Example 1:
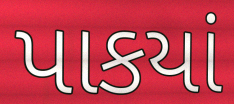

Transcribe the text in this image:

પાકયાં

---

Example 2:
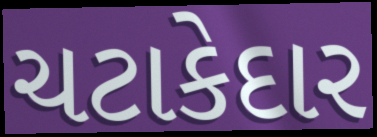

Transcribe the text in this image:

ચટાકેદાર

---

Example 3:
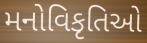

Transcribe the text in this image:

મનોવિકૃતિઓ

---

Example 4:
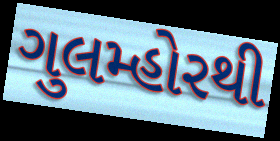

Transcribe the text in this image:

ગુલમ્હોરથી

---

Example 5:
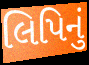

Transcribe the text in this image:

લિપિનું